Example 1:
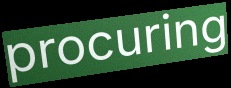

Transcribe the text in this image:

procuring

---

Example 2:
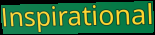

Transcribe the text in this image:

Inspirational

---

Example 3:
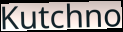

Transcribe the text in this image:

Kutchno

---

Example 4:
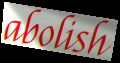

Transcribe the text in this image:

abolish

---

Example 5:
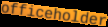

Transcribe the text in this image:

officeholder